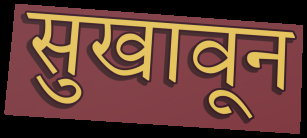
सुखावून